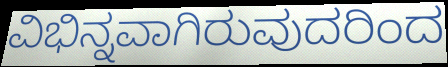
ವಿಭಿನ್ನವಾಗಿರುವುದರಿಂದ